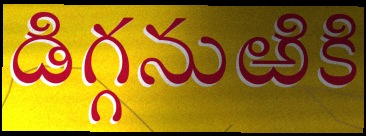
డిగ్గనుఱికి